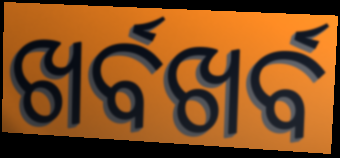
ଖର୍ବଖର୍ବ